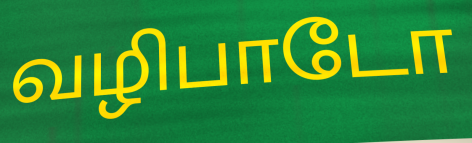
வழிபாடோ